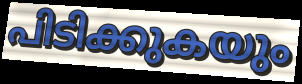
പിടിക്കുകയും